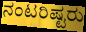
ನಂಟರಿಷ್ಟರು